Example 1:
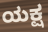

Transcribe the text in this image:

ಯಕ್ಷ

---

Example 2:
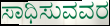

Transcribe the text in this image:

ಸಾಧಿಸುವವರ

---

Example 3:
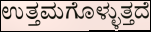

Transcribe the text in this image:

ಉತ್ತಮಗೊಳ್ಳುತ್ತದೆ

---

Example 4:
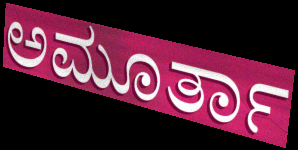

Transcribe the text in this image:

ಅಮೂರ್ತಾ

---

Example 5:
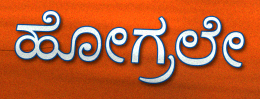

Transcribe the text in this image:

ಹೋಗ್ರಲೇ